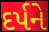
દર્પને